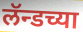
लॅन्डच्या